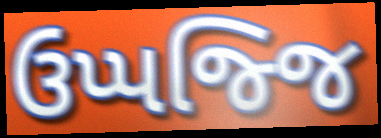
ઉપ્પજ્જિ